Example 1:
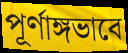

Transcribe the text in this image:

পূর্ণাঙ্গভাবে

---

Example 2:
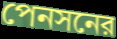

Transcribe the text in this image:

পেনসনের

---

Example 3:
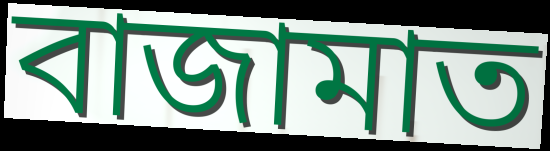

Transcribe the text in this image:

বাজামাত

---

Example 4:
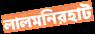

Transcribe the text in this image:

লালমনিরহাট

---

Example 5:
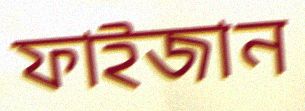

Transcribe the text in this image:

ফাইজান